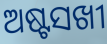
ଅଷ୍ଟସଖୀ